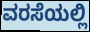
ವರಸೆಯಲ್ಲಿ